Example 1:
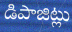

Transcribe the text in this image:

డిపాజిట్లు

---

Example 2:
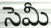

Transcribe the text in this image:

సెమీ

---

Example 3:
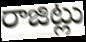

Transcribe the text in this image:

రాజిట్లు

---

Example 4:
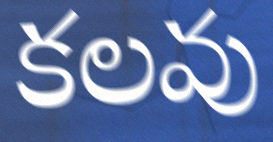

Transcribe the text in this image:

కలవు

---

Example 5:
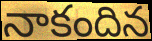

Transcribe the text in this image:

నాకందిన